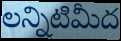
లన్నిటిమీద